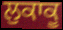
ਲੁਕਾਕੂ